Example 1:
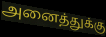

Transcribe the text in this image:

அனைத்துக்கு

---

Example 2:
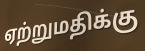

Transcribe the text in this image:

ஏற்றுமதிக்கு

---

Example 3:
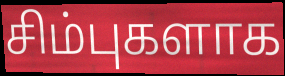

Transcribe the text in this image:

சிம்புகளாக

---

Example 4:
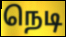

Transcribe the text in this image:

நெடி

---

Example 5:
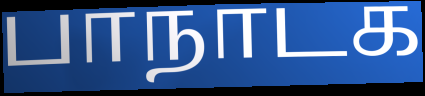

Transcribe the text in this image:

பாநாடக